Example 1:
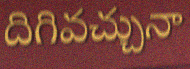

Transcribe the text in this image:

దిగివచ్చునా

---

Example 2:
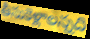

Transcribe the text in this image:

తీసుకెళ్లాలన్నది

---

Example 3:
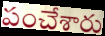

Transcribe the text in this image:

పంచేశారు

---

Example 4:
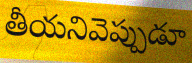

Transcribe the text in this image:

తీయనివెప్పుడూ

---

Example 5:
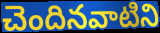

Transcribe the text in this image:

చెందినవాటిని